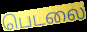
பெடலை